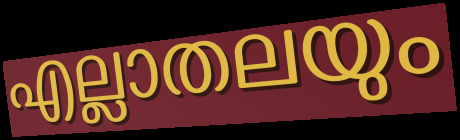
എല്ലാതലയും